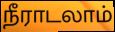
நீராடலாம்